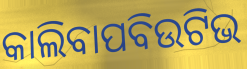
କାଲିବାପବିଉଟିଭ